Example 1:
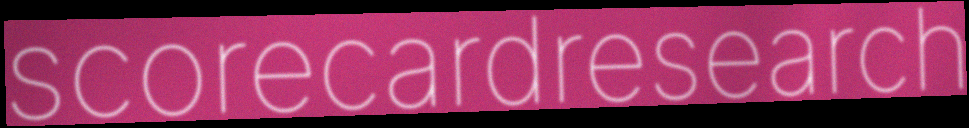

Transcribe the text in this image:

scorecardresearch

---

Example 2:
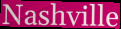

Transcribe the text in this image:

Nashville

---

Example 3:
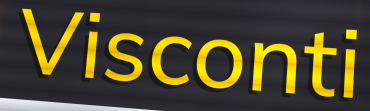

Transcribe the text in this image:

Visconti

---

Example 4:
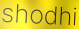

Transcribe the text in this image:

shodhi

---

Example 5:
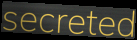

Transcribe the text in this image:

secreted